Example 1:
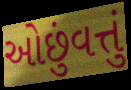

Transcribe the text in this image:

ઓછુંવત્તું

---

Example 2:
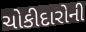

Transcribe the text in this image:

ચોકીદારોની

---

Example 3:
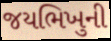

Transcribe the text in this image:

જયભિખુની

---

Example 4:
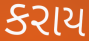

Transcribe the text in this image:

કરાય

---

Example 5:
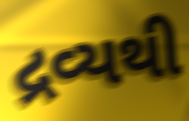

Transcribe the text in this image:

દ્રવ્યથી